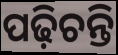
ପଢ଼ିଚନ୍ତି